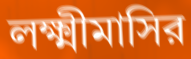
লক্ষ্মীমাসির